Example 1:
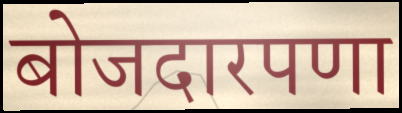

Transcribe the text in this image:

बोजदारपणा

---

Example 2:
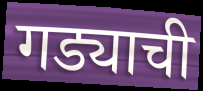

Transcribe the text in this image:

गड्याची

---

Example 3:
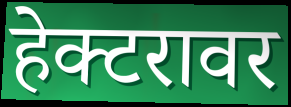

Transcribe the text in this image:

हेक्टरावर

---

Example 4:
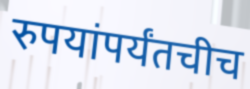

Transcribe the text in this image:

रुपयांपर्यंतचीच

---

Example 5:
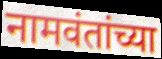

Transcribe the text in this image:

नामवंतांच्या